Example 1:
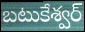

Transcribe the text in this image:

బటుకేశ్వర్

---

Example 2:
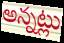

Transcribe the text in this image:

అన్నట్లు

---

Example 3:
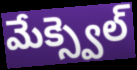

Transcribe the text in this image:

మేక్స్వెల్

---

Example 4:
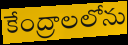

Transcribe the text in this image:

కేంద్రాలలోను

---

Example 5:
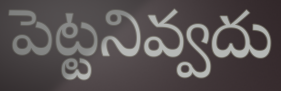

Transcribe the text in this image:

పెట్టనివ్వదు